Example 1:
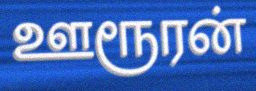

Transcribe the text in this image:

ஊரூரன்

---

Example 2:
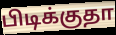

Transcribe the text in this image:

பிடிக்குதா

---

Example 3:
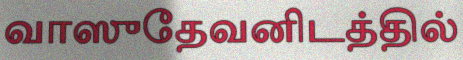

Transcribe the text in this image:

வாஸுதேவனிடத்தில்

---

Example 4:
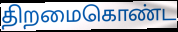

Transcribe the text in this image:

திறமைகொண்ட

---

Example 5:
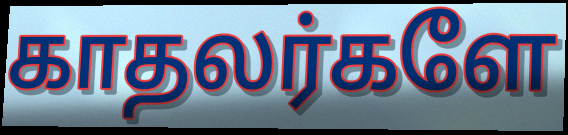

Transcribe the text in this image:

காதலர்களே